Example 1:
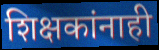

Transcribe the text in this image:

शिक्षकांनाही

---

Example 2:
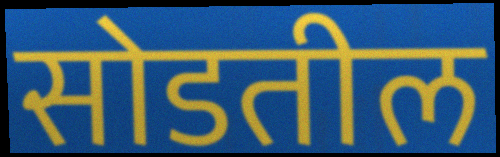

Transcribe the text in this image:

सोडतील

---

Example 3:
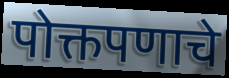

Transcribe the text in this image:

पोक्तपणाचे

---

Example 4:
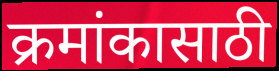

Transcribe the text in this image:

क्रमांकासाठी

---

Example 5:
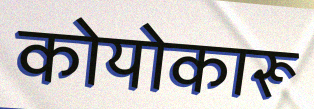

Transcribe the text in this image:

कोयोकारू